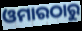
ଓମାରଠାରୁ